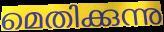
മെതിക്കുന്നു